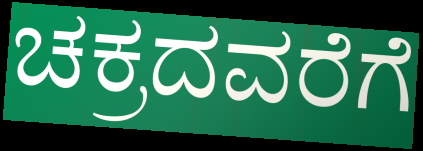
ಚಕ್ರದವರೆಗೆ